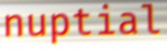
nuptial